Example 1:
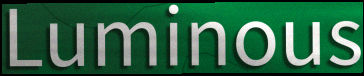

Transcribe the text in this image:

Luminous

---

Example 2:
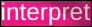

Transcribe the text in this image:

interpret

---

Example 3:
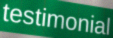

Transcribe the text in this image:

testimonial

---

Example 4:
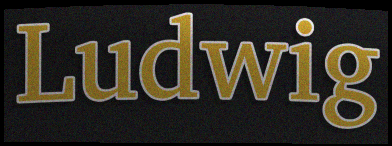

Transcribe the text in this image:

Ludwig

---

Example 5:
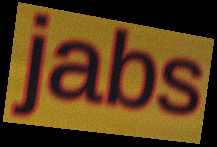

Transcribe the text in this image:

jabs